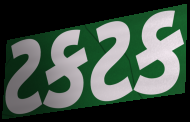
ટકટક